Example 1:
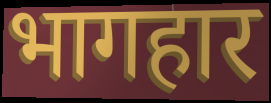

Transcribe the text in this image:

भागहार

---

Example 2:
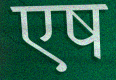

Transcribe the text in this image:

एष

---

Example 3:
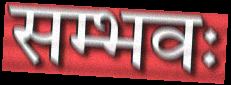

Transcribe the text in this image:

सम्भवः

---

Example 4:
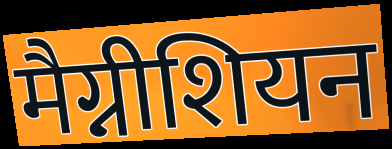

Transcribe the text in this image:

मैग्नीशियन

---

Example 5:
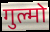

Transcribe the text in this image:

गुल्मो